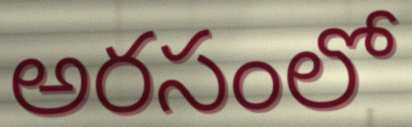
అరసంలో